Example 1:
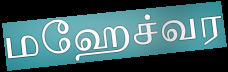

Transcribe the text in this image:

மஹேச்வர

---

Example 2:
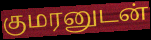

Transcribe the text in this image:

குமரனுடன்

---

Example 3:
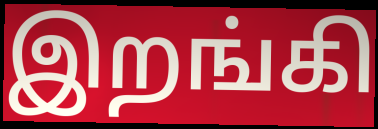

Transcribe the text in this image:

இறங்கி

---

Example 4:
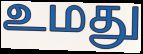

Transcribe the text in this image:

உமது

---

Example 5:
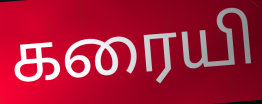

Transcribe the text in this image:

கரையி